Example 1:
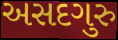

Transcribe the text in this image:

અસદગુરુ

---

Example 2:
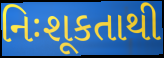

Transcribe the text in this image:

નિઃશૂકતાથી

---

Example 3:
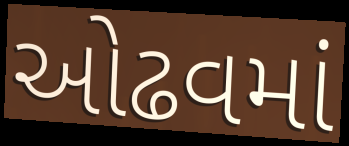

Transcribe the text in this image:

ઓઢવમાં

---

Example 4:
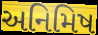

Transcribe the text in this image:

અનિમિષ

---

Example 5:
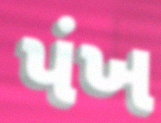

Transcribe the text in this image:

પંખ